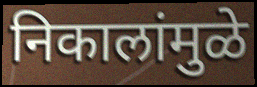
निकालांमुळे